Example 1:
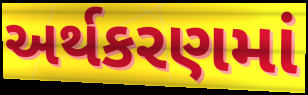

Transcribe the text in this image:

અર્થકરણમાં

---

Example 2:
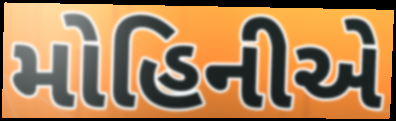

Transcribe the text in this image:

મોહિનીએ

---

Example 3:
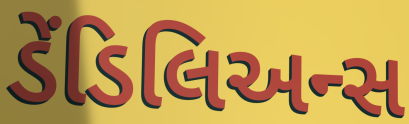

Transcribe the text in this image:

ડેંડિલિઅન્સ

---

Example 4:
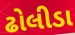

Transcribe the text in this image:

ઢોલીડા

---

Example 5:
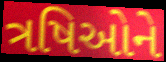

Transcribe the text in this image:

ત્રષિઓને